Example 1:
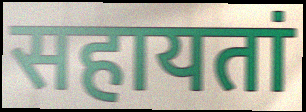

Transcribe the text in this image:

सहायतां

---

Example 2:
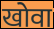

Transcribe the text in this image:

खोवा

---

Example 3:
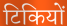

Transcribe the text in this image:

टिकियों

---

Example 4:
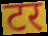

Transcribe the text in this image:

टर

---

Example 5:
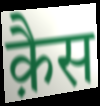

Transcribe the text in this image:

क़ैस